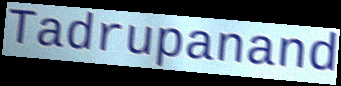
Tadrupanand